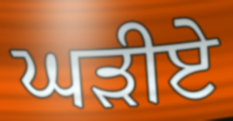
ਘੜੀਏ